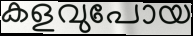
കളവുപോയ